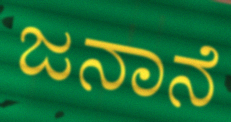
ಜನಾನೆ